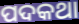
ପଦକଥା